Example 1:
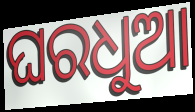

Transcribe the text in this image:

ଘରଧୁଆ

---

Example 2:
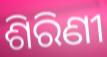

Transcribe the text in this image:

ଶିରିଣୀ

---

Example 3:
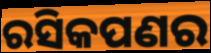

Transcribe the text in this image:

ରସିକପଣର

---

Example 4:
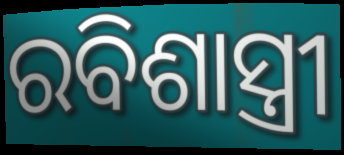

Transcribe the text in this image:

ରବିଶାସ୍ତ୍ରୀ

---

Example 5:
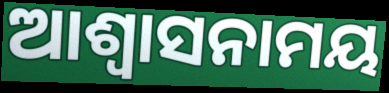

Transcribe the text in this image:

ଆଶ୍ୱାସନାମୟ